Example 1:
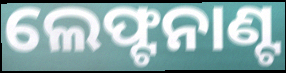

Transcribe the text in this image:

ଲେଫ୍ଟନାଣ୍ଟ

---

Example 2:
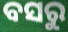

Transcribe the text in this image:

ବସରୁ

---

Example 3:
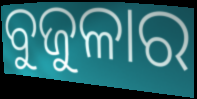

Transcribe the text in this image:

ବୁଜୁଳାର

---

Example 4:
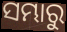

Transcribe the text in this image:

ସମ୍ଭାରୁ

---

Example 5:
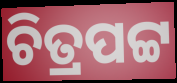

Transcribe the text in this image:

ଚିତ୍ରପଟ୍ଟ